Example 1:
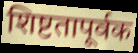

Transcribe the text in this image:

शिष्टतापूर्वक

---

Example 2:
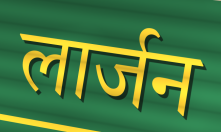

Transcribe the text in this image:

लार्जन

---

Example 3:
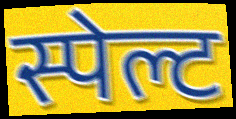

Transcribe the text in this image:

स्पेल्ट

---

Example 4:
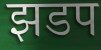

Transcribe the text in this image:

झडप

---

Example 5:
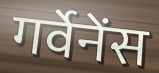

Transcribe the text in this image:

गर्वेनेंस